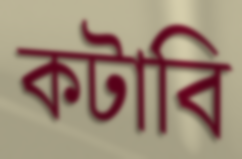
কটাবি